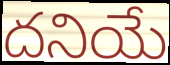
దనియే